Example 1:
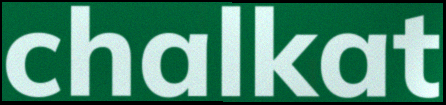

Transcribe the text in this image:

chalkat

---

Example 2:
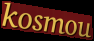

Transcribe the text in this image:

kosmou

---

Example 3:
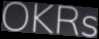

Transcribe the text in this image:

OKRs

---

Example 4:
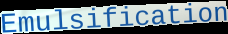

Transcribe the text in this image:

Emulsification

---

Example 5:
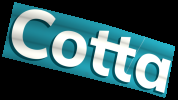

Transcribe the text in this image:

Cotta